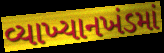
વ્યાખ્યાનખંડમાં